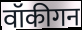
वॉकीगन